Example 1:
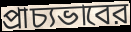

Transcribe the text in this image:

প্রাচ্যভাবের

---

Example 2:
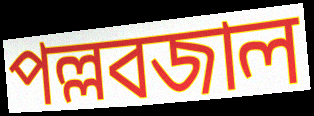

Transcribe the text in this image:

পল্লবজাল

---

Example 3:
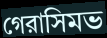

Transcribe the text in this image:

গেরাসিমভ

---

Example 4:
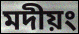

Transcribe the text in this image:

মদীয়ং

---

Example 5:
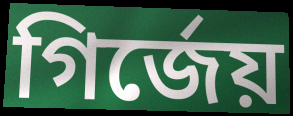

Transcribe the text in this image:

গির্জেয়